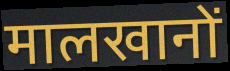
मालखानों